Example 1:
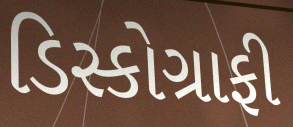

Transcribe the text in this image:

ડિસ્કોગ્રાફી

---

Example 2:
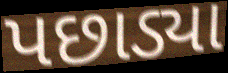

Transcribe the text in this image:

પછાડ્યા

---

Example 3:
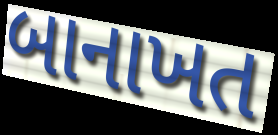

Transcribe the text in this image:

બાનાખત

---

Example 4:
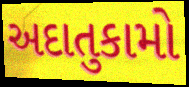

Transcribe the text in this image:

અદાતુકામો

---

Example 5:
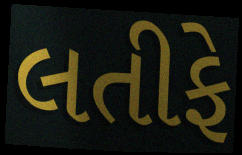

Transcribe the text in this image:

લતીફે